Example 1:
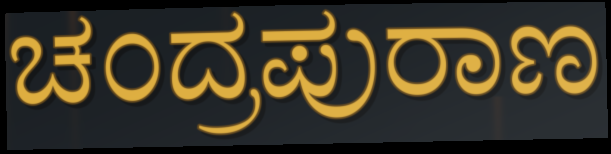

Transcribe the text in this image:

ಚಂದ್ರಪುರಾಣ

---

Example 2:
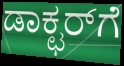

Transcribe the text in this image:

ಡಾಕ್ಟರ್‌ಗೆ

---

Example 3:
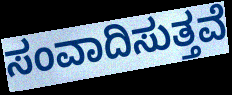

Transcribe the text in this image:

ಸಂವಾದಿಸುತ್ತವೆ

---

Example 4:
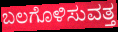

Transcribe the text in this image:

ಬಲಗೊಳಿಸುವತ್ತ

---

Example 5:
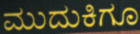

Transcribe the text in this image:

ಮುದುಕಿಗೂ